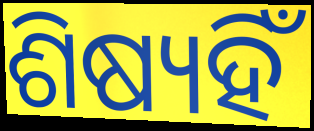
ଶିଷ୍ୟହିଁ